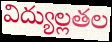
విద్యుల్లతల